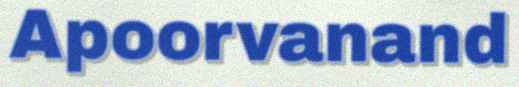
Apoorvanand